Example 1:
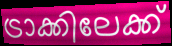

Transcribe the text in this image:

ട്രാക്കിലേക്ക്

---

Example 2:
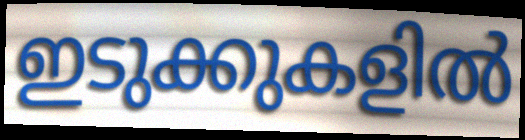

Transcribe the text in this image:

ഇടുക്കുകളിൽ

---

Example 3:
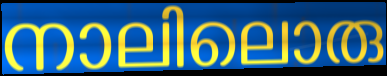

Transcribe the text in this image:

നാലിലൊരു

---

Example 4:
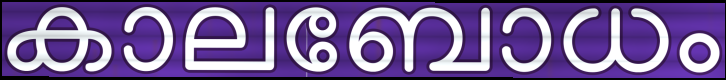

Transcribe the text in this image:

കാലബോധം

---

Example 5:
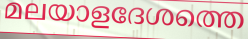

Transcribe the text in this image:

മലയാളദേശത്തെ